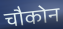
चौकोन